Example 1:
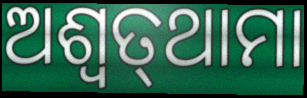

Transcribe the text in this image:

ଅଶ୍ଵତ୍‌ଥାମା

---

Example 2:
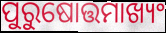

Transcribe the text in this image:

ପୁରୁଷୋତ୍ତମାଖ୍ୟଂ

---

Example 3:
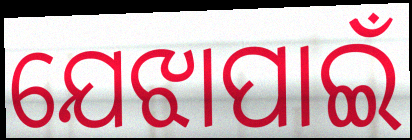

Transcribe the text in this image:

ଯେଝାପାଇଁ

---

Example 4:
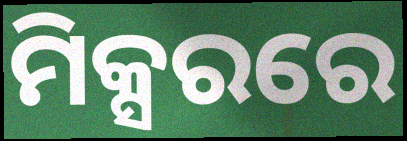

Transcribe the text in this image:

ମିକ୍ସରରେ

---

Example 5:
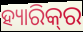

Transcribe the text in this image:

ହ୍ୟାରିକ୍‌ର